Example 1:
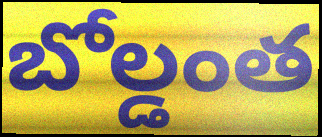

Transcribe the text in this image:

బోల్డంత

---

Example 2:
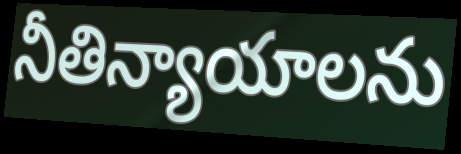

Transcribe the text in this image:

నీతిన్యాయాలను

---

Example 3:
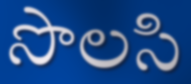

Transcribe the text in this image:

సొలసి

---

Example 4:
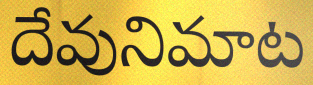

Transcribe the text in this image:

దేవునిమాట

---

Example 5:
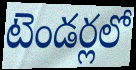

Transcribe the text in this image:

టెండర్లలో